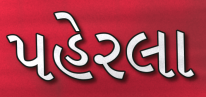
પહેરલા